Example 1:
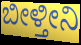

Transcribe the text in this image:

ಬೀಳ್ತೀನಿ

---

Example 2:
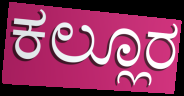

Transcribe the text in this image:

ಕಲ್ಲೂರ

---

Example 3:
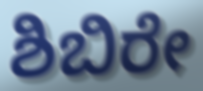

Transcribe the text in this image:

ಶಿಬಿರೇ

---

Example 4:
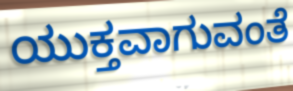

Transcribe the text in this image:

ಯುಕ್ತವಾಗುವಂತೆ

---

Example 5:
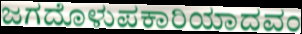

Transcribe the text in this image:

ಜಗದೊಳುಪಕಾರಿಯಾದವಂ